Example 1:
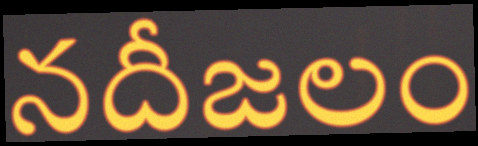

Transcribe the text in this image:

నదీజలం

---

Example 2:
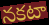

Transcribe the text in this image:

నకటా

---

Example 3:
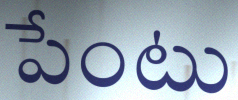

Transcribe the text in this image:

పేంటు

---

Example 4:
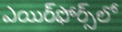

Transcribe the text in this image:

ఎయిర్‌ఫోర్స్‌లో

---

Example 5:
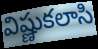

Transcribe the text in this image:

విష్ణుకలాసి